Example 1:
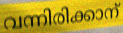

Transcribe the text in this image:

വന്നിരിക്കാന്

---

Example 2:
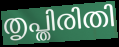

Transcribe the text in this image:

തൃപ്തിരിതി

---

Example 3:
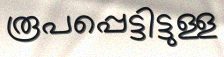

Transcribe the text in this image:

രൂപപ്പെട്ടിട്ടുള്ള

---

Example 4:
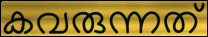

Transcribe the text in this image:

കവരുന്നത്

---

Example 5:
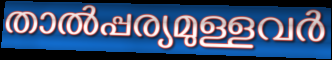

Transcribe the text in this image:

താൽപ്പര്യമുള്ളവർ